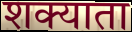
शक्याता